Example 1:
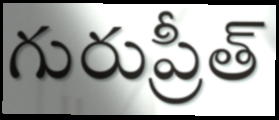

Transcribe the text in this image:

గురుప్రీత్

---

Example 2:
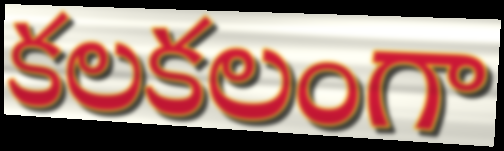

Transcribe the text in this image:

కలకలంగా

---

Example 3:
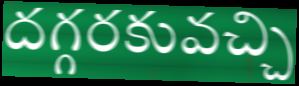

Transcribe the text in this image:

దగ్గరకువచ్చి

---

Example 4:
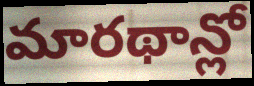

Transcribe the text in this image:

మారథాన్లో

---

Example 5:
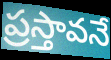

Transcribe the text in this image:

ప్రస్తావనే